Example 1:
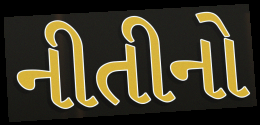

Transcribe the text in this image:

નીતીનો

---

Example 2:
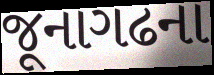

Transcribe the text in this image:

જૂનાગઢના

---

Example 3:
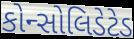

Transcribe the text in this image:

કોન્સોલિડેટેડ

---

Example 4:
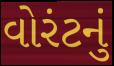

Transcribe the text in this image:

વોરંટનું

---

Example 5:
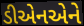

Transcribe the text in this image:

ડીએનએને